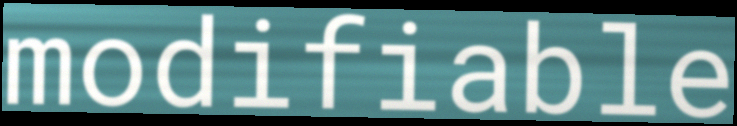
modifiable